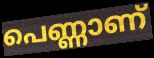
പെണ്ണാണ്